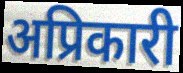
अप्रिकारी